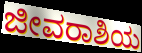
ಜೀವರಾಶಿಯ